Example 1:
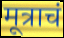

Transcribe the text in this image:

मूत्राचं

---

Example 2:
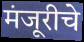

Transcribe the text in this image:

मंजूरीचे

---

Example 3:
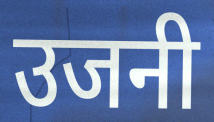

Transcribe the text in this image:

उजनी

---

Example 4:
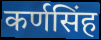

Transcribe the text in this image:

कर्णसिंह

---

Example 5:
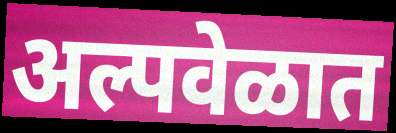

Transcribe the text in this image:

अल्पवेळात